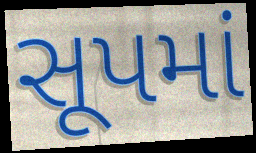
સૂપમાં